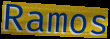
Ramos